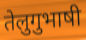
तेलुगुभाषी